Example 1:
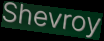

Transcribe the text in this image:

Shevroy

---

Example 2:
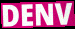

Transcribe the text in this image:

DENV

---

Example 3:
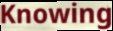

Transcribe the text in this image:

Knowing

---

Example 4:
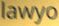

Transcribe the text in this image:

lawyo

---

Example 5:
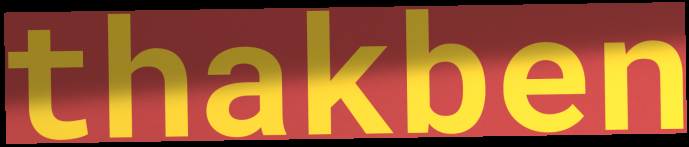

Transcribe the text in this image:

thakben